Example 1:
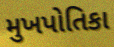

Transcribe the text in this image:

મુખપોતિકા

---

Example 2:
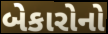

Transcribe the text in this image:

બેકારોનો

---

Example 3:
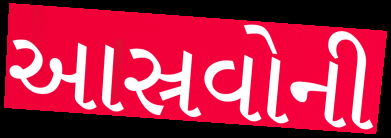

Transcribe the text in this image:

આસ્રવોની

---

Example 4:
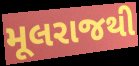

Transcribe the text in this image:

મૂલરાજથી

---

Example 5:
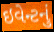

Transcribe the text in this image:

ઇવેન્ટનું